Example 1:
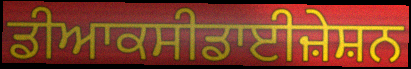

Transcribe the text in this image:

ਡੀਆਕਸੀਡਾਈਜ਼ੇਸ਼ਨ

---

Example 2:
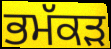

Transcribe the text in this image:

ਭਮੱਕੜ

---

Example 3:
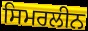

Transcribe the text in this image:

ਸਿਮਰਲੀਨ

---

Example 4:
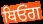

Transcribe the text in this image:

ਥਿਓਂਗ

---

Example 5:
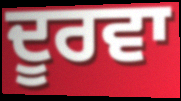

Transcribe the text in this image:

ਦੂਰਵਾ